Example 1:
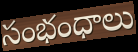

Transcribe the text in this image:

సంభంధాలు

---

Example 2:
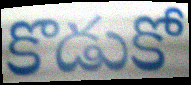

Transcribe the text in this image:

కొడుకో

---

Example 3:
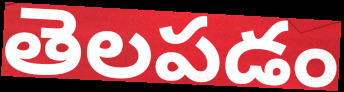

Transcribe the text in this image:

తెలపడం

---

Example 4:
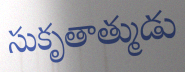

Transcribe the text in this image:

సుకృతాత్ముడు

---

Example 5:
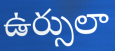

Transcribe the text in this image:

ఉర్సులా